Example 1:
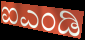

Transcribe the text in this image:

ಐಎಂಡಿ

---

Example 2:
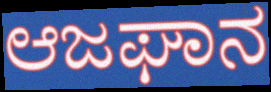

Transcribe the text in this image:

ಆಜಘಾನ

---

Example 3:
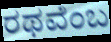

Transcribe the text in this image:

ರಥವೆಂಬ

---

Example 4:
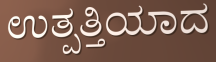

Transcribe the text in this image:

ಉತ್ಪತ್ತಿಯಾದ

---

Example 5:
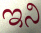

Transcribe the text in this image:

ಇನಿ